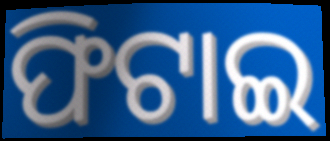
ଫିଟାଇ